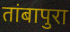
तांबापुरा